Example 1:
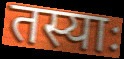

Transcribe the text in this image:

तस्याः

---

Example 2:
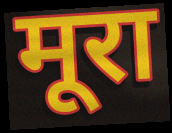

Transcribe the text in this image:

मूरा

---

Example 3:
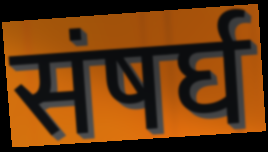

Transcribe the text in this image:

संषर्घ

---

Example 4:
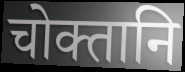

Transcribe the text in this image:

चोक्तानि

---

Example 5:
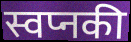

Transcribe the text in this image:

स्वप्नकी